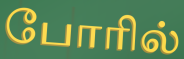
போரில்